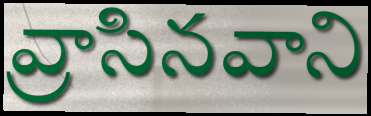
వ్రాసినవాని